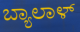
ಬ್ಯಾಲಾಳ್